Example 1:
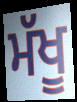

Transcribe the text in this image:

ਮੱਖੂ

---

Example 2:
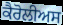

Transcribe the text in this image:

ਕੈਰੋਲੀਅਸ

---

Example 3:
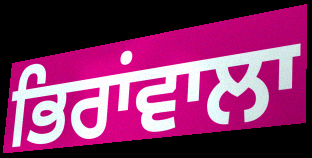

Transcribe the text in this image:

ਭਿਰਾਂਵਾਲਾ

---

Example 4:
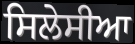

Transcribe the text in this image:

ਸਿਲੇਸੀਆ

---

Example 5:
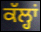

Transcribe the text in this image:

ਕੱਲ੍ਹਾਂ